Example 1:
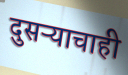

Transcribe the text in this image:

दुसऱ्याचाही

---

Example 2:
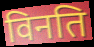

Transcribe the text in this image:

विनति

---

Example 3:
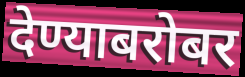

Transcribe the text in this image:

देण्याबरोबर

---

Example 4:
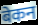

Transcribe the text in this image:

बेकन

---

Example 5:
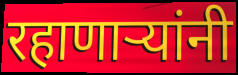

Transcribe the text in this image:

रहाणार्‍यांनी